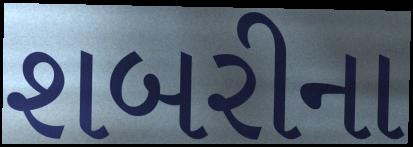
શબરીના